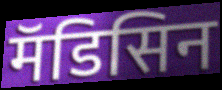
मॅडिसिन